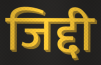
जिद्दी